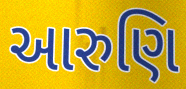
આરુણિ